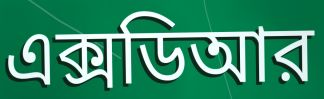
এক্সডিআর